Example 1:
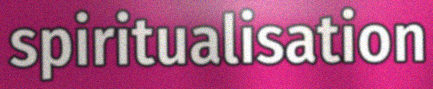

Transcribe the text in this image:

spiritualisation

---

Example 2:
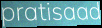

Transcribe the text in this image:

pratisaad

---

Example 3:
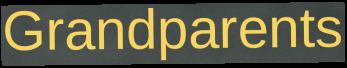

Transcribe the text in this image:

Grandparents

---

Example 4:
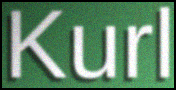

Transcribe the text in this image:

Kurl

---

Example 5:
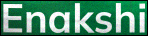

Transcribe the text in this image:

Enakshi